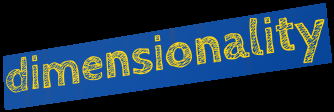
dimensionality